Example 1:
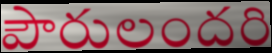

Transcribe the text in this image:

పౌరులందరి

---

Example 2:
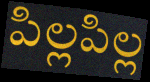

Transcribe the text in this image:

పిల్లపిల్ల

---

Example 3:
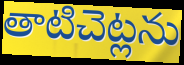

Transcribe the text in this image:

తాటిచెట్లను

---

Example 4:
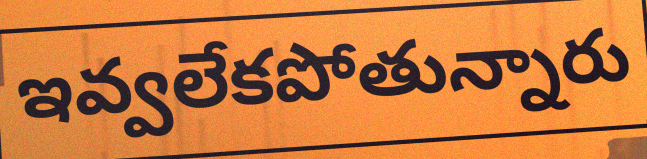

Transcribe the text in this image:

ఇవ్వలేకపోతున్నారు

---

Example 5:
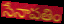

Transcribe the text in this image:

సేనాపతిం